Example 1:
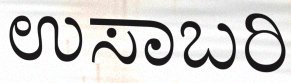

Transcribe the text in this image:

ಉಸಾಬರಿ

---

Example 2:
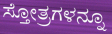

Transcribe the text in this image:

ಸ್ತೋತ್ರಗಳನ್ನೂ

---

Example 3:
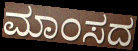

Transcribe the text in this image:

ಮಾಂಸದ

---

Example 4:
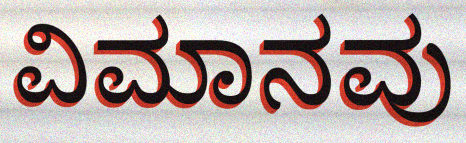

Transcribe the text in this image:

ವಿಮಾನವು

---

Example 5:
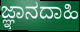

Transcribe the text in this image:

ಜ್ಞಾನದಾಹಿ